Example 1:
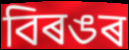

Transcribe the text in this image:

বিৰঙৰ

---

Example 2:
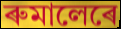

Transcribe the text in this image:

ৰুমালেৰে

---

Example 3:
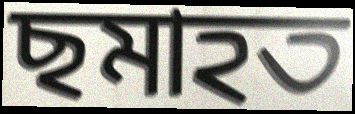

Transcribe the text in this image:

ছমাহত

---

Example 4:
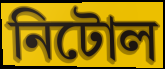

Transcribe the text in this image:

নিটোল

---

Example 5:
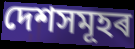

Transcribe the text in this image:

দেশসমূহৰ